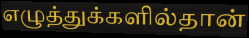
எழுத்துக்களில்தான்